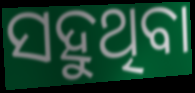
ସହୁଥିବା